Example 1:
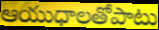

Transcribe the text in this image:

ఆయుధాలతోపాటు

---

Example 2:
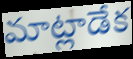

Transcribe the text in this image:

మాట్లాడేక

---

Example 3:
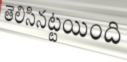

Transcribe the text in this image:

తెలిసినట్టయింది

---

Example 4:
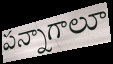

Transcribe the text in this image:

పన్నాగాలూ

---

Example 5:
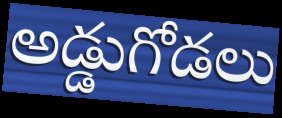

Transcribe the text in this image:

అడ్డుగోడలు